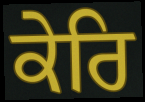
ਕੇਰਿ